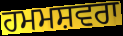
ਹਮਮਸ਼ਵਰਾ